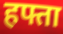
हफ्ता